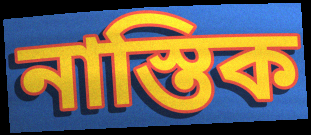
নাস্তিক